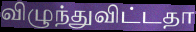
விழுந்துவிட்டதா